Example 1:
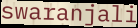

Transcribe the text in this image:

swaranjali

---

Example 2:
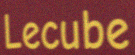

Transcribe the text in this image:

Lecube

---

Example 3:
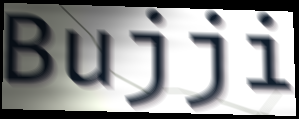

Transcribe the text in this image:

Bujji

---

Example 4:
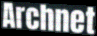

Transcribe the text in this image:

Archnet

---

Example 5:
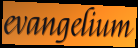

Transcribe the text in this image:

evangelium